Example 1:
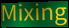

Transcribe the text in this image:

Mixing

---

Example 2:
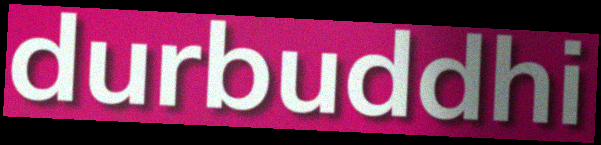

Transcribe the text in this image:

durbuddhi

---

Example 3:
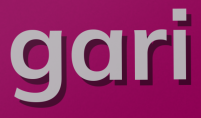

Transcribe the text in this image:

gari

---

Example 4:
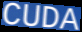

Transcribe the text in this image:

CUDA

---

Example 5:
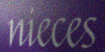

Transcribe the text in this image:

nieces